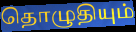
தொழுதியும்